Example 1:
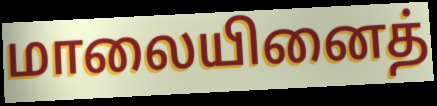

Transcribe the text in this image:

மாலையினைத்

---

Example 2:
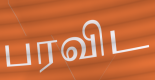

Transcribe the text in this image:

பரவிட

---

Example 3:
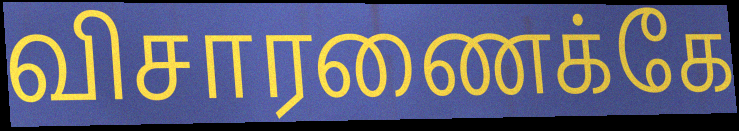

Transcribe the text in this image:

விசாரணைக்கே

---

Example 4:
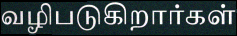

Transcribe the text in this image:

வழிபடுகிறார்கள்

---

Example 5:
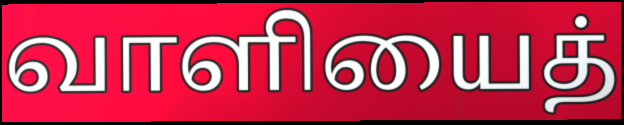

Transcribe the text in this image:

வாளியைத்